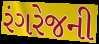
રંગરેજની